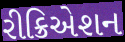
રીક્રિએશન